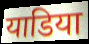
याडिया